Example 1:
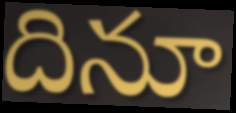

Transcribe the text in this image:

దినూ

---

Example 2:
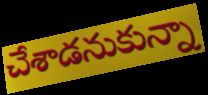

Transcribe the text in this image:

చేశాడనుకున్నా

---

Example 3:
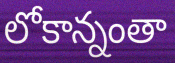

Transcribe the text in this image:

లోకాన్నంతా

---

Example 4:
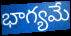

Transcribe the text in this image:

భాగ్యమే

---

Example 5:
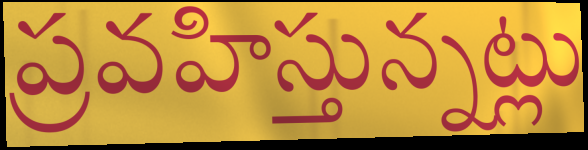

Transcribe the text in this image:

ప్రవహిస్తున్నట్లు